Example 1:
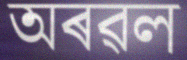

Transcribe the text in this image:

অৰৱল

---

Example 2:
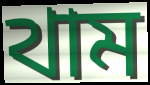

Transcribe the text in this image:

থাম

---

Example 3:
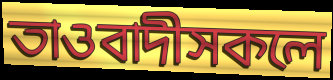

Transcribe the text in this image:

তাওবাদীসকলে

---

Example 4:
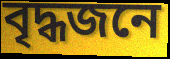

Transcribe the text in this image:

বৃদ্ধজনে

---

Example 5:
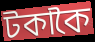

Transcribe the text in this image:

টকাকৈ